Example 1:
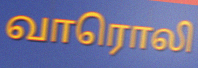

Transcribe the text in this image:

வாரொலி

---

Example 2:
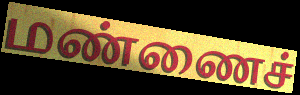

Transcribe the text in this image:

மண்ணைச்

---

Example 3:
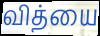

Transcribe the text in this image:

வித்யை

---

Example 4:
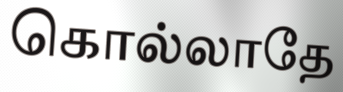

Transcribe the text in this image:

கொல்லாதே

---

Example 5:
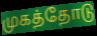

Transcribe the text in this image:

முகத்தோடு